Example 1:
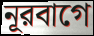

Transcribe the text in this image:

নূরবাগে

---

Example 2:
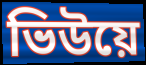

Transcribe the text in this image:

ভিউয়ে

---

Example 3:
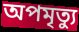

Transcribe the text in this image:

অপমৃত্যু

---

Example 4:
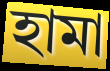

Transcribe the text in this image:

হামা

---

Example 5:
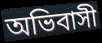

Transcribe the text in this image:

অভিবাসী